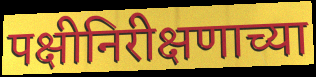
पक्षीनिरीक्षणाच्या